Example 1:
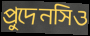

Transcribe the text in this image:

প্রুদেনসিও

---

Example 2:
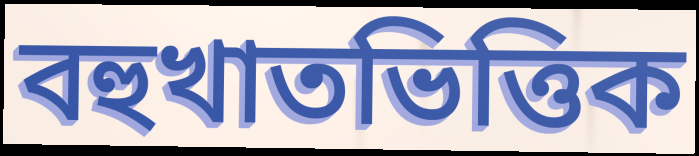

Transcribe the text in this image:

বহুখাতভিত্তিক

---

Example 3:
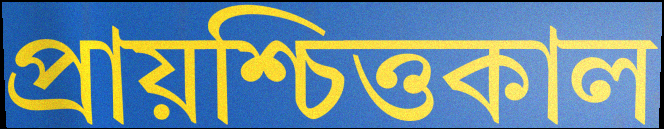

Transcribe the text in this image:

প্রায়শ্চিত্তকাল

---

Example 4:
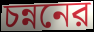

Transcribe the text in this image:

চন্ননের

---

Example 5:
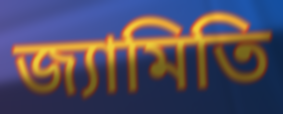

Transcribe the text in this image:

জ্যামিতি